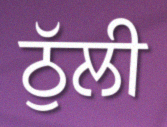
ਠੁੱਲੀ